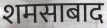
शमसाबाद